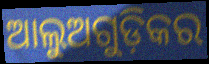
ଆଲୁଅଗୁଡ଼ିକର